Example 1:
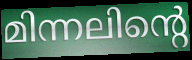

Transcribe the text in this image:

മിന്നലിന്റെ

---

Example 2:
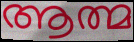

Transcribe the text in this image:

ആത്മ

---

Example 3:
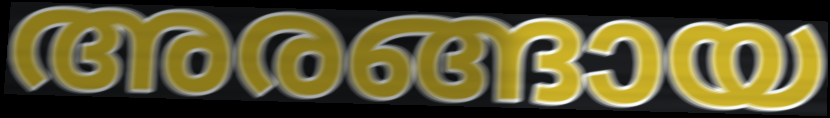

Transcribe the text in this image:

അരങ്ങായ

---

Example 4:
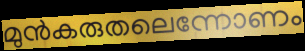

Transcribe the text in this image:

മുൻകരുതലെന്നോണം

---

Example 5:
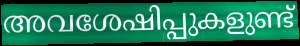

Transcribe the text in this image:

അവശേഷിപ്പുകളുണ്ട്